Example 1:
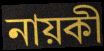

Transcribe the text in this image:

নায়কী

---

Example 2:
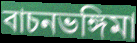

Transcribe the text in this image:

বাচনভঙ্গিমা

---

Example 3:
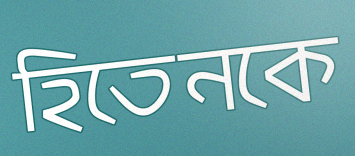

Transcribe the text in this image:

হিতেনকে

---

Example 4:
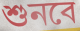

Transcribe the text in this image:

শুনবে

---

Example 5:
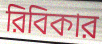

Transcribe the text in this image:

রিবিকার